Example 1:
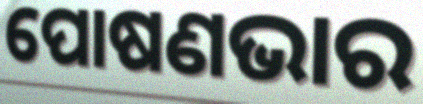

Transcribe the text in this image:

ପୋଷଣଭାର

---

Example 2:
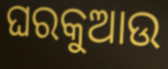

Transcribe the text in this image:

ଘରକୁଆଉ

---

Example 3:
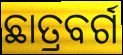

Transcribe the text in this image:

ଛାତ୍ରବର୍ଗ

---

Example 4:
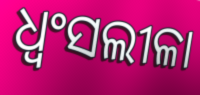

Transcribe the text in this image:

ଧ୍ୱଂସଲୀଳା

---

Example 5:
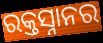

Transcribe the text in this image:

ରକ୍ତସ୍ନାନର